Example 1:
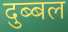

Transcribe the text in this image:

दुब्बल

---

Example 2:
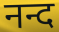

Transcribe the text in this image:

नन्द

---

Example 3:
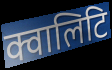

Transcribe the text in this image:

क्वालिटि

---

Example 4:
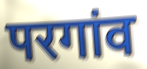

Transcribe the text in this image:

परगांव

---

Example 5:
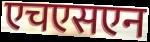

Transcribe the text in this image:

एचएसएन